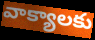
వాక్యాలకు